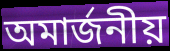
অমার্জনীয়